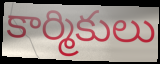
కార్మికులు